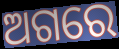
ଅଗରେ